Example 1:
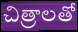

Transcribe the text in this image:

చిత్రాలతో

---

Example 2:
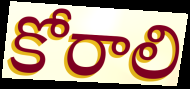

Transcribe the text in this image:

కోరాలి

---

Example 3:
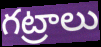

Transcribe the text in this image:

గట్రాలు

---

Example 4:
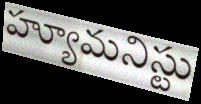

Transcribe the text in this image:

హ్యూమనిస్టు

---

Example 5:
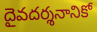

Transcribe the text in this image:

దైవదర్శనానికో